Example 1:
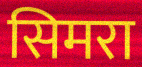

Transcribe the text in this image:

सिमरा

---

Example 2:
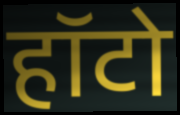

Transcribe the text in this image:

हॉटो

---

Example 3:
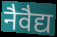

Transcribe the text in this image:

नैवैद्य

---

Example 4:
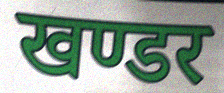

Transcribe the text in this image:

खण्डर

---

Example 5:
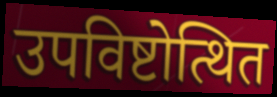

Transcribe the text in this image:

उपविष्टोत्थित